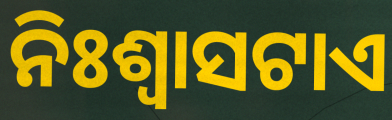
ନିଃଶ୍ଵାସଟାଏ